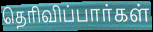
தெரிவிப்பார்கள்